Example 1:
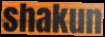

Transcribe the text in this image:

shakun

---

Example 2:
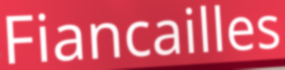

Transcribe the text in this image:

Fiancailles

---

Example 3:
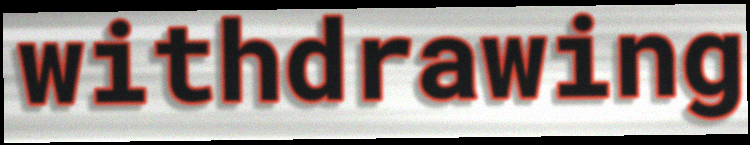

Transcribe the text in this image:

withdrawing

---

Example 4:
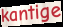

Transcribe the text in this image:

kantige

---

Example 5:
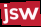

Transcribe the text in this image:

jsw